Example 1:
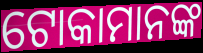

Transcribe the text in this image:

ଟୋକାମାନଙ୍କ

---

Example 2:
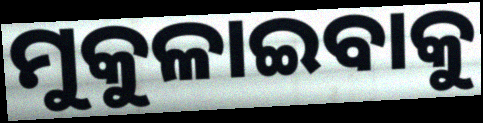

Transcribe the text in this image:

ମୁକୁଳାଇବାକୁ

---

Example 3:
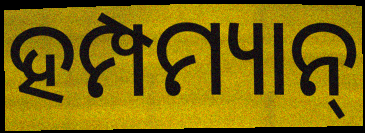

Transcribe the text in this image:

ହମ୍ପମ୍ୟାନ୍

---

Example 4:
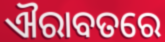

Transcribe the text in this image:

ଐରାବତରେ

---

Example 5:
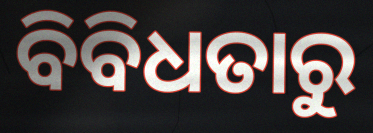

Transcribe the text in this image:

ବିବିଧତାରୁ